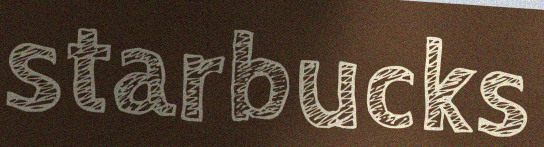
starbucks